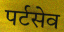
पर्टसेव